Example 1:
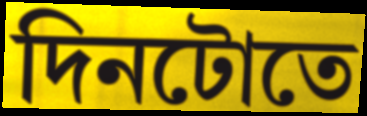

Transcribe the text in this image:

দিনটোতে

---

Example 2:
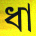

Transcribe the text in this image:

ধা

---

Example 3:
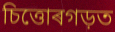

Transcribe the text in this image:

চিত্তোৰগড়ত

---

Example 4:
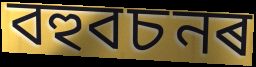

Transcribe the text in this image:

বহুবচনৰ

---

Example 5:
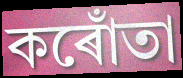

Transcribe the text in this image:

কৰোঁতা